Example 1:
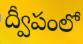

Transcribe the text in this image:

ద్వీపంలో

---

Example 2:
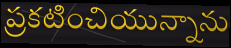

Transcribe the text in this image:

ప్రకటించియున్నాను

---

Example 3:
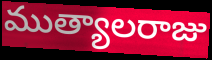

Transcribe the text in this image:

ముత్యాలరాజు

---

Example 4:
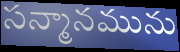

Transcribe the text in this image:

సన్మానమును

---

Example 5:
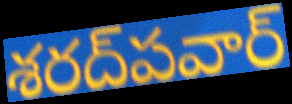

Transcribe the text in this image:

శరద్‌పవార్